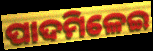
ପାଦମିଳେଇ